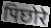
पिछोरे